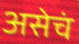
असेचं